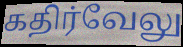
கதிர்வேலு